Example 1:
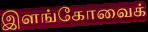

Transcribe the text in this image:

இளங்கோவைக்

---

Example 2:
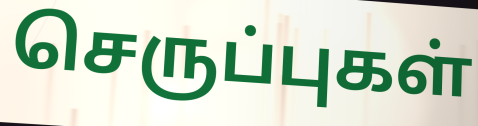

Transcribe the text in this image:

செருப்புகள்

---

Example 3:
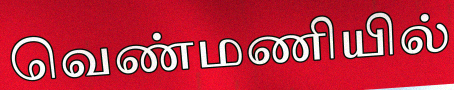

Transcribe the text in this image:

வெண்மணியில்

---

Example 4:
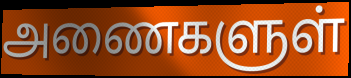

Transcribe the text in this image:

அணைகளுள்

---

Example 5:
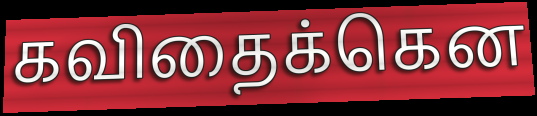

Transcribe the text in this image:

கவிதைக்கென